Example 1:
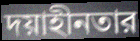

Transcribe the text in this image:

দয়াহীনতার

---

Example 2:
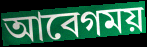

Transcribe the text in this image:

আবেগময়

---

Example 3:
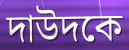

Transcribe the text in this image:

দাউদকে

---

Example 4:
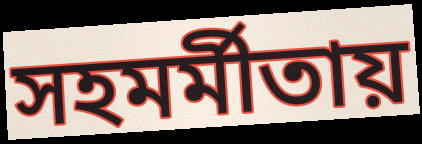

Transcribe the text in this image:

সহমর্মীতায়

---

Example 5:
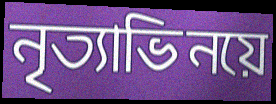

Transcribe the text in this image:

নৃত্যাভিনয়ে